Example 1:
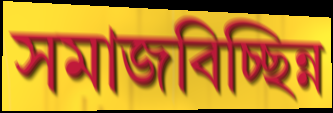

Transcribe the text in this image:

সমাজবিচ্ছিন্ন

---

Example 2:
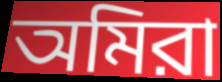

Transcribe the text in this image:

অমিরা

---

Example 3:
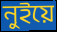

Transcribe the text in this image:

নুইয়ে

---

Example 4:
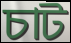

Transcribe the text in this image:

চাট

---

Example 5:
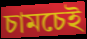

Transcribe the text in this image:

চামচেই